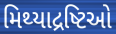
મિથ્યાદ્રષ્ટિઓ